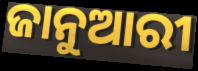
ଜାନୁଆରୀ